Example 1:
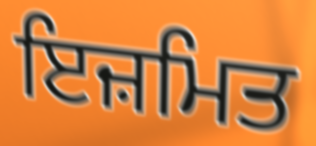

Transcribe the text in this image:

ਇਜ਼ਮਿਤ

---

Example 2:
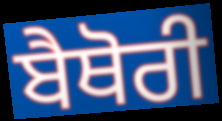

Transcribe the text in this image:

ਬੈਥੋਰੀ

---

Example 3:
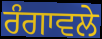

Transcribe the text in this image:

ਰੰਗਾਵਲੇ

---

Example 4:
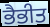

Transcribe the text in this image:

ਭੈਭੀਤ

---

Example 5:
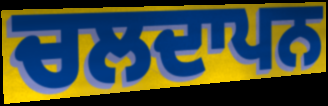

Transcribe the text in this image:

ਚਲਦਾਪਨ